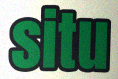
situ